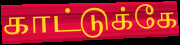
காட்டுக்கே